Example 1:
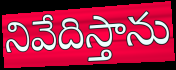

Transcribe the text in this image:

నివేదిస్తాను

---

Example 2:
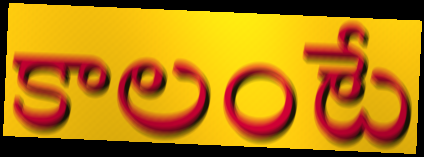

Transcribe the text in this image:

కాలంటే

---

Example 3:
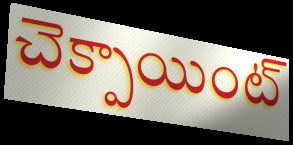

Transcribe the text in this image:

చెక్పాయింట్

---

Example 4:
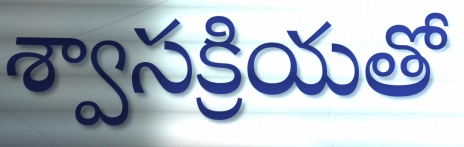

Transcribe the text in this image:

శ్వాసక్రియతో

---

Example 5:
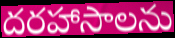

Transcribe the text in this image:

దరహాసాలను